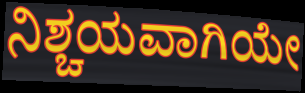
ನಿಶ್ಚಯವಾಗಿಯೇ